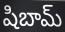
షిబామ్